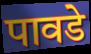
पावडे